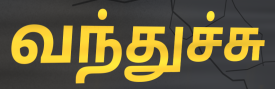
வந்துச்சு